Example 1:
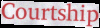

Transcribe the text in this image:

Courtship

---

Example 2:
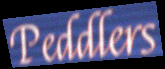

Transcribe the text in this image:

Peddlers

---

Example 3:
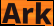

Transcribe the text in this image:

Ark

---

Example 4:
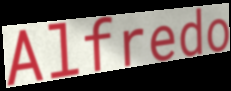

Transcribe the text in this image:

Alfredo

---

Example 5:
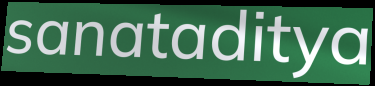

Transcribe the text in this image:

sanataditya